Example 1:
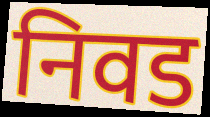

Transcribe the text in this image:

निवड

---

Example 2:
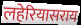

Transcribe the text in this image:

लहेरियासराय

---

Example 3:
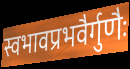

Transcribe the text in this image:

स्वभावप्रभवैर्गुणैः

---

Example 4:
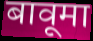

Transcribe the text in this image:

बावूमा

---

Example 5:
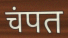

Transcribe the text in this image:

चंपत